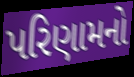
પરિણામનો